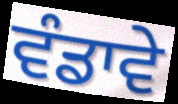
ਵੰਡਾਵੇ